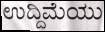
ಉದ್ದಿಮೆಯು